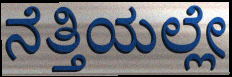
ನೆತ್ತಿಯಲ್ಲೇ